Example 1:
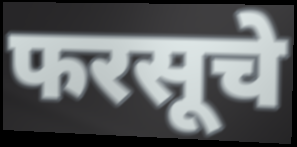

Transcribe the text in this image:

फरसूचे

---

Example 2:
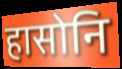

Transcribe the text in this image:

हासोनि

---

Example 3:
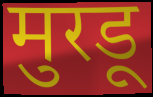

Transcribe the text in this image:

मुरडू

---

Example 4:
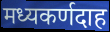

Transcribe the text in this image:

मध्यकर्णदाह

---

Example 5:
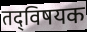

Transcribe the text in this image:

तद्‌विषयक